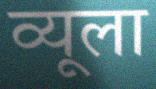
व्यूला